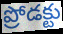
ప్రోడక్టు